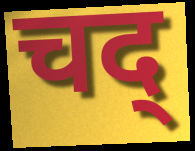
चद्